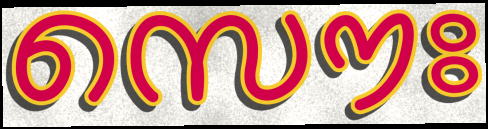
സൌഃ